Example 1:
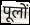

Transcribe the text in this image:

पूलों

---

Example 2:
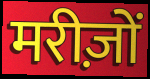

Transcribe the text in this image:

मरीज़ों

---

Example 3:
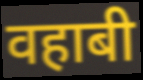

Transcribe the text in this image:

वहाबी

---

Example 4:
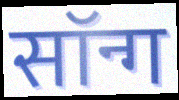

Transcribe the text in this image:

सॉन्ग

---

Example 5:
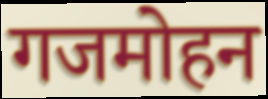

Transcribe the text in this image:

गजमोहन